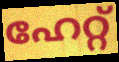
ഹേറ്റ്